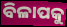
ବିଳାପକୁ